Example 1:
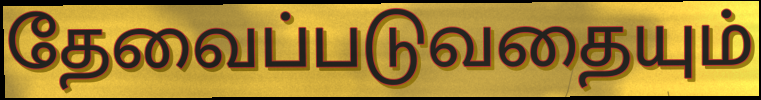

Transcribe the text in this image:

தேவைப்படுவதையும்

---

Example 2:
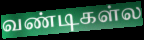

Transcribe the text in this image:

வண்டிகள்ல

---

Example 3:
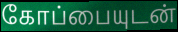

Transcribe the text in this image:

கோப்பையுடன்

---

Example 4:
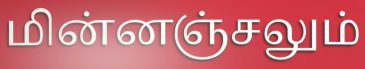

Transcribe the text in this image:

மின்னஞ்சலும்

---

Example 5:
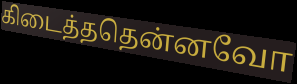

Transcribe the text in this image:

கிடைத்ததென்னவோ